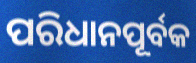
ପରିଧାନପୂର୍ବକ